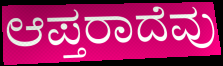
ಆಪ್ತರಾದೆವು